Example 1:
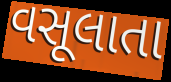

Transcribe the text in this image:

વસૂલાતા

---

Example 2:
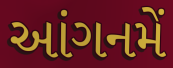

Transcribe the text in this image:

આંગનમેં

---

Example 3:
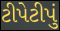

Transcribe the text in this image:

ટીપેટીપું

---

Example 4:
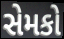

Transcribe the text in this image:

સેમકો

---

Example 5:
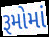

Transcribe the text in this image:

રૂમોમાં